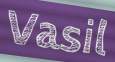
Vasil